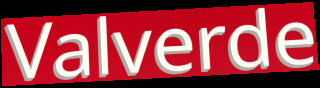
Valverde